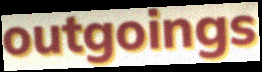
outgoings